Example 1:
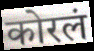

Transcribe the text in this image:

कोरलं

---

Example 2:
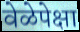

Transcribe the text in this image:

वेळेपेक्षा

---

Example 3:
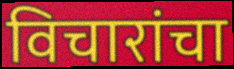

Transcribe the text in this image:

विचारांचा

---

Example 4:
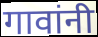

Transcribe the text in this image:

गावांनी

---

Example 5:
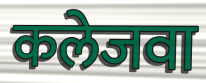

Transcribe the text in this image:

कलेजवा